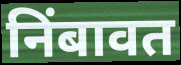
निंबावत